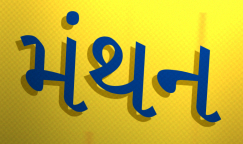
મંથન